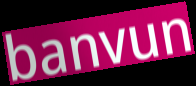
banvun